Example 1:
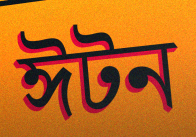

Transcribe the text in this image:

ঈটন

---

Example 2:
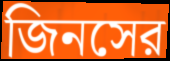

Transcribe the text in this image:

জিনসের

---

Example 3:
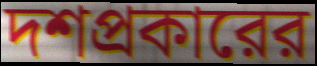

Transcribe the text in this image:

দশপ্রকারের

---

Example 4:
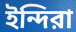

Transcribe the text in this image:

ইন্দিরা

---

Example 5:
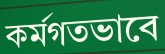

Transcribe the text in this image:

কর্মগতভাবে